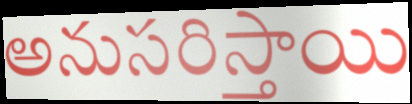
అనుసరిస్తాయి